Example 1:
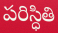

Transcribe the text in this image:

పరిస్ధితి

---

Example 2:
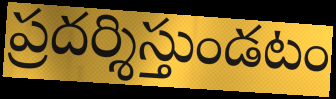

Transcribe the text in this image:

ప్రదర్శిస్తుండటం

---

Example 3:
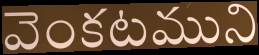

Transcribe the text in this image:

వెంకటముని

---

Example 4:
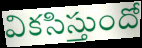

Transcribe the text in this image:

వికసిస్తుందో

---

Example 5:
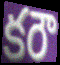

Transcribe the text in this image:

కరౌ